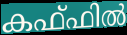
കഫ്ഫിൽ